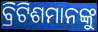
ବ୍ରିଟିଶମାନଙ୍କୁ